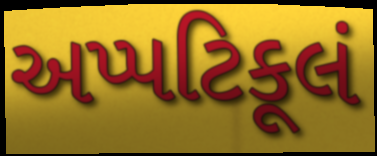
અપ્પટિકૂલં